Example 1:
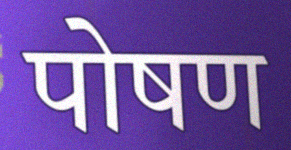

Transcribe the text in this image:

पोषण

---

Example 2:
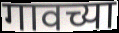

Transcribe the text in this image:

गावच्या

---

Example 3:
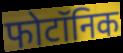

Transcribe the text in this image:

फोटॉनिक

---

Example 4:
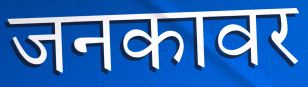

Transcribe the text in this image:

जनकावर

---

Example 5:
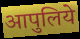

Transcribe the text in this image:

आपुलिये